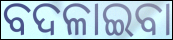
ବଦଳାଇବା